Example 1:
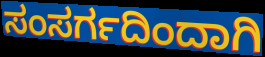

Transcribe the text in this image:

ಸಂಸರ್ಗದಿಂದಾಗಿ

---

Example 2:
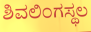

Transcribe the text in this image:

ಶಿವಲಿಂಗಸ್ಥಲ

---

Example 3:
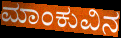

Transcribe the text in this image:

ಮಾಂಕುವಿನ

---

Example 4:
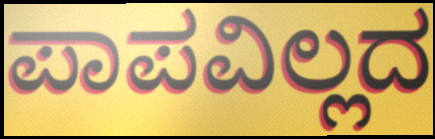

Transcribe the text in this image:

ಪಾಪವಿಲ್ಲದ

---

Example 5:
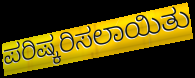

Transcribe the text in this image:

ಪರಿಷ್ಕರಿಸಲಾಯಿತು